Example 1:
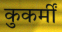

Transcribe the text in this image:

कुकर्मीं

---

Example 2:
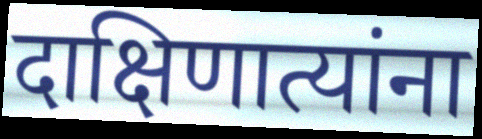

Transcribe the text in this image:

दाक्षिणात्यांना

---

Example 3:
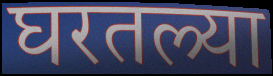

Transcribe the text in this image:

घरतल्या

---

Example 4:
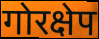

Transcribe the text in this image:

गोरक्षेप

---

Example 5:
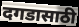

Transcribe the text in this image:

दगडासाठी